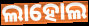
ଲାହୋଲ